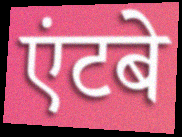
एंटबे